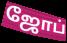
ஜோப்